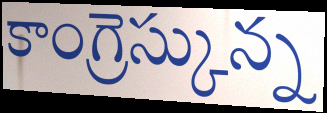
కాంగ్రెస్కున్న